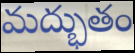
మద్భుతం